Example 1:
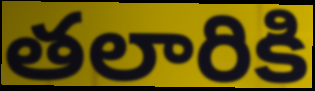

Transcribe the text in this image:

తలారికి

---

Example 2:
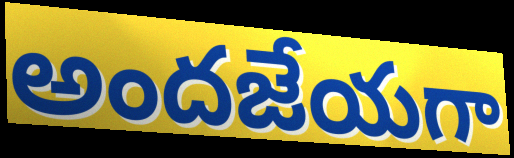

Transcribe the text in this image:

అందజేయగా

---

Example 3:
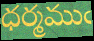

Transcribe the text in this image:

ధర్మముఁ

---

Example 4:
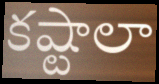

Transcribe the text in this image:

కష్టాలా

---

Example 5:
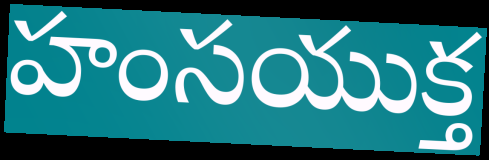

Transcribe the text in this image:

హంసయుక్త